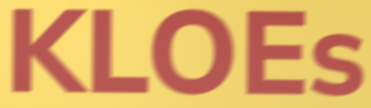
KLOEs